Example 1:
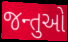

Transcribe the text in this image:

જન્તુઓ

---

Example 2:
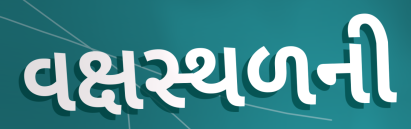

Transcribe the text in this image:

વક્ષસ્થળની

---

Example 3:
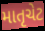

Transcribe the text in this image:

માતૃચેટ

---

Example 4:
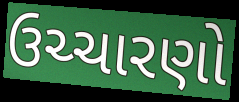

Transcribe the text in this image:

ઉચ્ચારણો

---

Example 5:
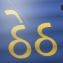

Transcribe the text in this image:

ઠેઠ